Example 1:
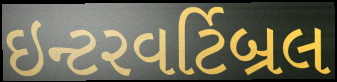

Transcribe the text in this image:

ઇન્ટરવર્ટિબ્રલ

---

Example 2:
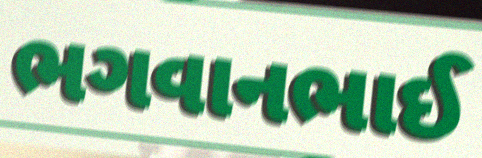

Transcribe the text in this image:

ભગવાનભાઈ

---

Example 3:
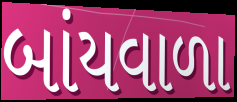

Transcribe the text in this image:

બાંયવાળા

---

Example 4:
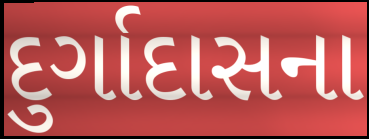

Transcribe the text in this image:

દુર્ગાદાસના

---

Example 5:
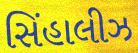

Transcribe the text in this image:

સિંહાલીઝ